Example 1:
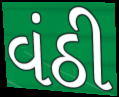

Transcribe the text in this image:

વંઠી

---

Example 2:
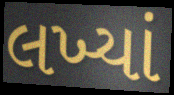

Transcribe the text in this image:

લખ્યાં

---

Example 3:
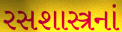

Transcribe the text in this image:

રસશાસ્ત્રનાં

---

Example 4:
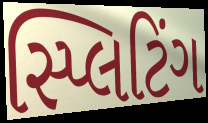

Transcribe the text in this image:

સ્પ્લિટિંગ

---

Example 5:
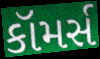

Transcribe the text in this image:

કૉમર્સ